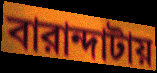
বারান্দাটায়